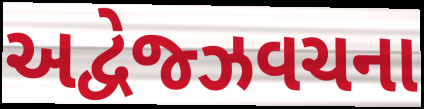
અદ્વેજ્ઝવચના